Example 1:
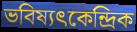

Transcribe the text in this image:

ভবিষ্যৎকেন্দ্রিক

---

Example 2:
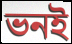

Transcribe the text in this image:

ভনই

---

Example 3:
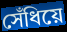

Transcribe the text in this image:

সেঁধিয়ে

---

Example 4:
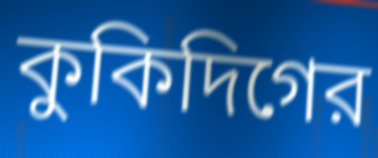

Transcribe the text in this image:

কুকিদিগের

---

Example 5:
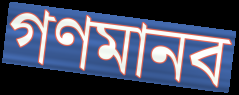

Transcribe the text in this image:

গণমানব